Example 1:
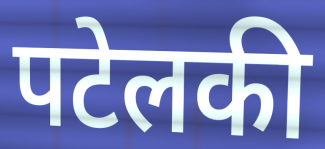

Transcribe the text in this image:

पटेलकी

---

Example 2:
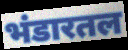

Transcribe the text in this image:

भंडारतल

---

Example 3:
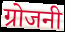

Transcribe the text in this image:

ग्रोजनी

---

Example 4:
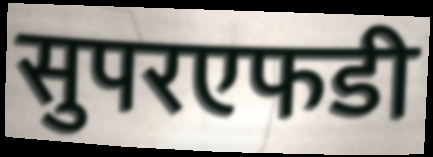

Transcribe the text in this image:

सुपरएफडी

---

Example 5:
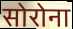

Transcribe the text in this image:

सोरोना